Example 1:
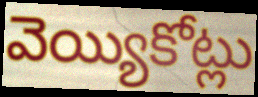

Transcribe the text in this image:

వెయ్యికోట్లు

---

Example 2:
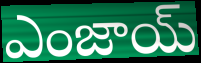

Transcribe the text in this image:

ఎంజాయ్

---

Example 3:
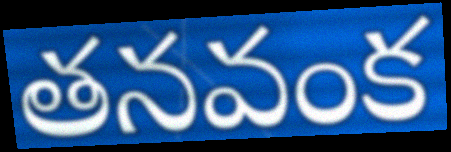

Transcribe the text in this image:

తనవంక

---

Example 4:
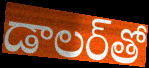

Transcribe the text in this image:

డాలర్‌తో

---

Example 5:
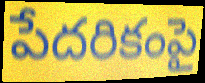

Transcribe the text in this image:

పేదరికంపై